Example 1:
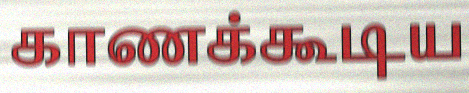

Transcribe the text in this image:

காணக்கூடிய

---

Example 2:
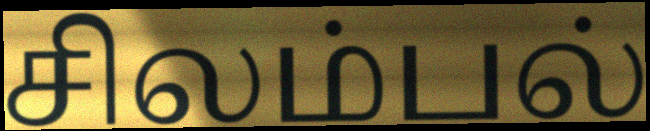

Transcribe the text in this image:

சிலம்பல்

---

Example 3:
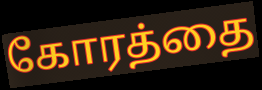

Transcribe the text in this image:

கோரத்தை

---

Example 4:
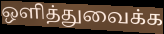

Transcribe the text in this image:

ஒளித்துவைக்க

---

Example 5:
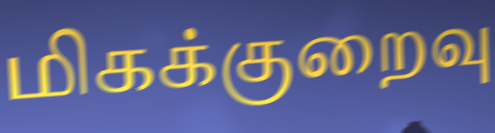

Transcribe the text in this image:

மிகக்குறைவு